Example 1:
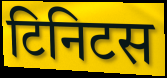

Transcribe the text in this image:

टिनिटस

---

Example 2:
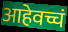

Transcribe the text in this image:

आहेवच्चं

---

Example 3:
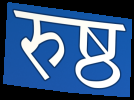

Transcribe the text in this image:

रुष्ठ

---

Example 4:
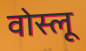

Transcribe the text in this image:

वोस्लू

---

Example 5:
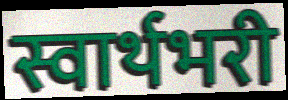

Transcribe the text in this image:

स्वार्थभरी